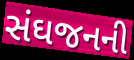
સંઘજનની